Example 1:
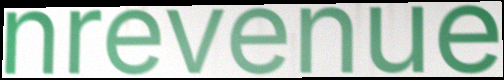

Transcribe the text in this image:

nrevenue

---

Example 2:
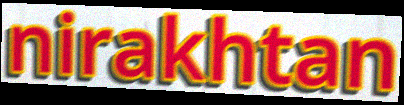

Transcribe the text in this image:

nirakhtan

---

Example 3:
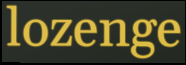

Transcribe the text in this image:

lozenge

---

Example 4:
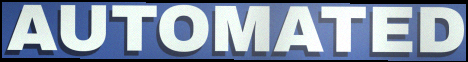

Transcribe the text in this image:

AUTOMATED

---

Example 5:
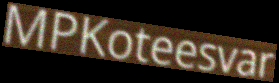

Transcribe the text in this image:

MPKoteesvar